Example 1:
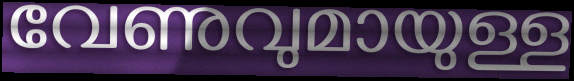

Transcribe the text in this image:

വേണുവുമായുള്ള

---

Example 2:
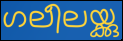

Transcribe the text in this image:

ഗലീലയ്ക്കു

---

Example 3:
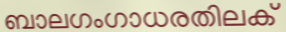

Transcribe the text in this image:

ബാലഗംഗാധരതിലക്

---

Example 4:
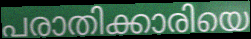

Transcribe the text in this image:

പരാതിക്കാരിയെ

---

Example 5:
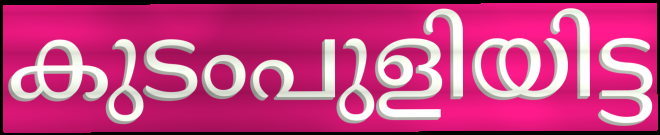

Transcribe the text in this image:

കുടംപുളിയിട്ട